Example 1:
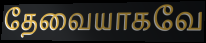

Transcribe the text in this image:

தேவையாகவே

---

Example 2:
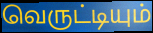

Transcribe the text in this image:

வெருட்டியும்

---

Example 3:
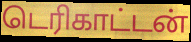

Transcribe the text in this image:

டெரிகாட்டன்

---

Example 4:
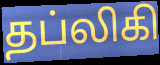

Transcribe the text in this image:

தப்லிகி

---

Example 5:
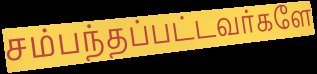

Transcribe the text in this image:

சம்பந்தப்பட்டவர்களே